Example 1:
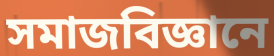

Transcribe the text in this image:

সমাজবিজ্ঞানে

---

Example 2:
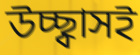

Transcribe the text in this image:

উচ্ছ্বাসই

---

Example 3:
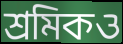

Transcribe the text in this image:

শ্রমিকও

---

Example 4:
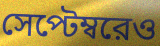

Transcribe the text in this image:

সেপ্টেম্বরেও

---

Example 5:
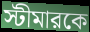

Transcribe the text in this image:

স্টীমারকে